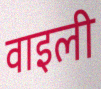
वाइली